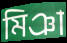
মিঞা